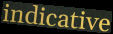
indicative